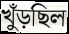
খুঁড়ছিল